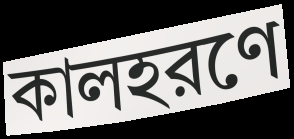
কালহরণে